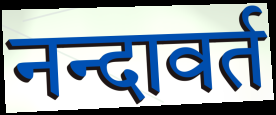
नन्दावर्त